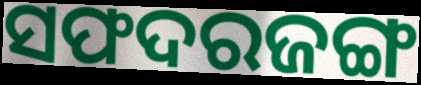
ସଫଦରଜଙ୍ଗ